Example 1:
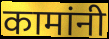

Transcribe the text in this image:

कामांनी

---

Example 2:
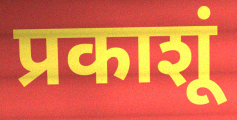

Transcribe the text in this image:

प्रकाशूं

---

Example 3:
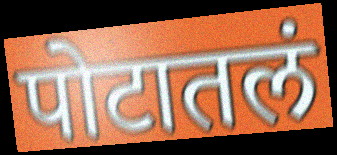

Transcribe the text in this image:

पोटातलं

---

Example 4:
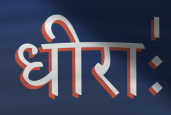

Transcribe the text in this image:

धीराः॑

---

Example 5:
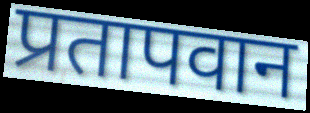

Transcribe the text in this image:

प्रतापवान